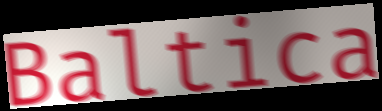
Baltica